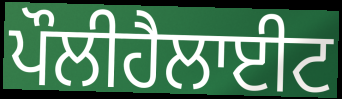
ਪੌਲੀਹੈਲਾਈਟ